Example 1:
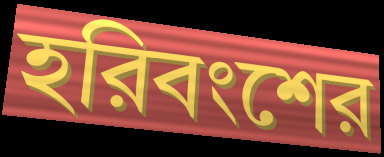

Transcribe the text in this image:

হরিবংশের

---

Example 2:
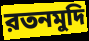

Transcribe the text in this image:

রতনমুদি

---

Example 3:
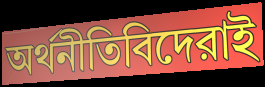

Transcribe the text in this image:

অর্থনীতিবিদেরাই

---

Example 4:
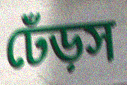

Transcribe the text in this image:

ঢেঁড়স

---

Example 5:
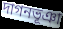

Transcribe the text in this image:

দাগনভূঞা